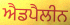
ਐਡਪੈਲੀਨ